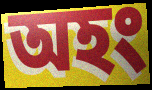
অহং